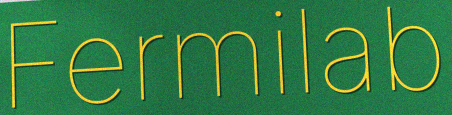
Fermilab